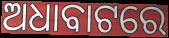
ଅଧାବାଟରେ